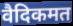
वैदिकमत